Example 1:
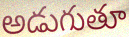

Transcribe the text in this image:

అడుగుతూ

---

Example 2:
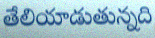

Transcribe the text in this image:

తేలియాడుతున్నది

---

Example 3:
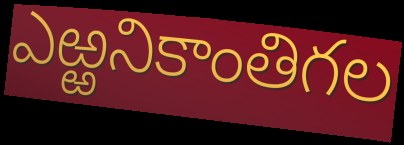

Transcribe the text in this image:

ఎఱ్ఱనికాంతిగల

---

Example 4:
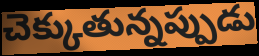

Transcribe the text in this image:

చెక్కుతున్నప్పుడు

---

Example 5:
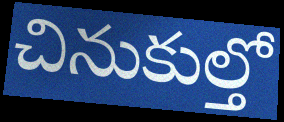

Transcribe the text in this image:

చినుకుల్తో